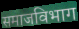
समाजविभाग